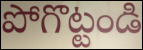
పోగొట్టండి